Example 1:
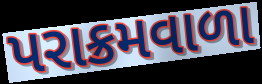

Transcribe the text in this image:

પરાક્રમવાળા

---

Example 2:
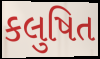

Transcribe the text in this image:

કલુષિત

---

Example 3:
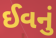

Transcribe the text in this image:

ઈવનું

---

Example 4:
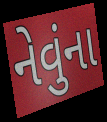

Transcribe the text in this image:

નેવુંના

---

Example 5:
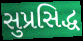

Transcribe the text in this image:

સુપ્રસિદ્ધ